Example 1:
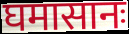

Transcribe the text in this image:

घमासानः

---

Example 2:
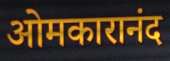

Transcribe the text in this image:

ओमकारानंद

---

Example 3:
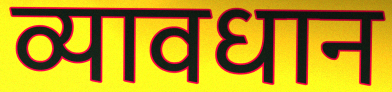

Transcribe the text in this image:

व्यावधान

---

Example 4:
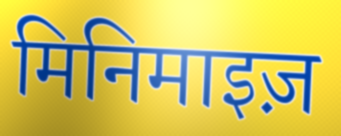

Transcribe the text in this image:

मिनिमाइज़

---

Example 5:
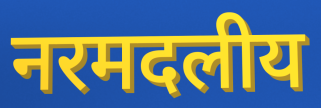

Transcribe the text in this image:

नरमदलीय